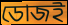
ডোজই